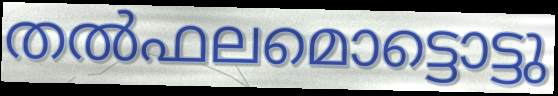
തൽഫലമൊട്ടൊട്ടു